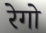
रेगो